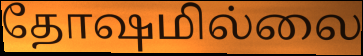
தோஷமில்லை